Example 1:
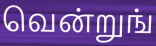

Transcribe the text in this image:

வென்றுங்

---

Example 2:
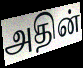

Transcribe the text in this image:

அதின்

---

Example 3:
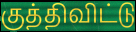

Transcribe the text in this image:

குத்திவிட்டு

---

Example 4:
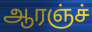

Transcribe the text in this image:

ஆரஞ்ச்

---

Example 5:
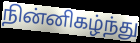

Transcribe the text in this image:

நின்னிகழ்ந்து